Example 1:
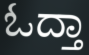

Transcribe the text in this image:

ಓದ್ತಾ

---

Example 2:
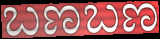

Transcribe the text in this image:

ಬಣಬಣ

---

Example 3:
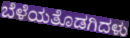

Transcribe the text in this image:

ಬೆಳೆಯತೊಡಗಿದಳು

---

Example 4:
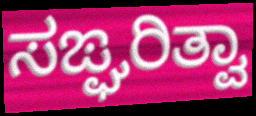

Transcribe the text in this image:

ಸಙ್ಘರಿತ್ವಾ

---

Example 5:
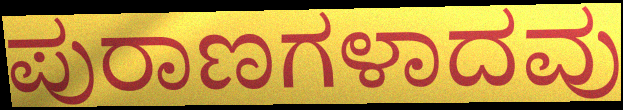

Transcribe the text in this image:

ಪುರಾಣಗಳಾದವು